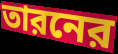
তারনের